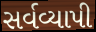
સર્વવ્યાપી